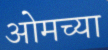
ओमच्या